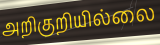
அறிகுறியில்லை